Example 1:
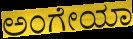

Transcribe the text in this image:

ಅಂಗೇಯಾ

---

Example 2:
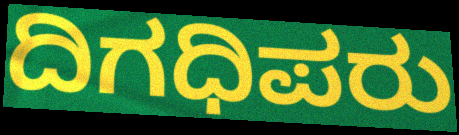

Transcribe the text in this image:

ದಿಗಧಿಪರು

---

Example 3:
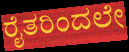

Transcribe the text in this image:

ರೈತರಿಂದಲೇ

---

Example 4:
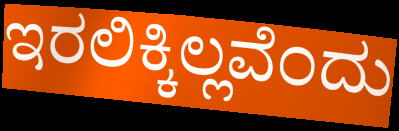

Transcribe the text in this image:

ಇರಲಿಕ್ಕಿಲ್ಲವೆಂದು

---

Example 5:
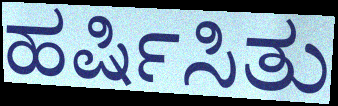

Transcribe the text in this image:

ಹರ್ಷಿಸಿತು